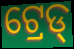
ଟ୍ରେଡ୍